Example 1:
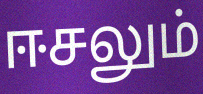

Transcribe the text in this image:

ஈசலும்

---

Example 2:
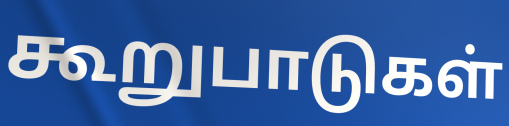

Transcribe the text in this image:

கூறுபாடுகள்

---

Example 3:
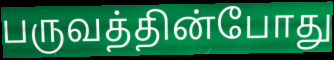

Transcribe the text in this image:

பருவத்தின்போது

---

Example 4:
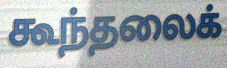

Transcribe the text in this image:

கூந்தலைக்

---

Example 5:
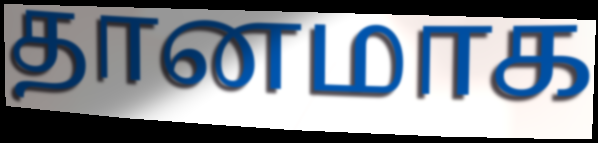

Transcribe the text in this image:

தானமாக